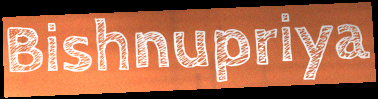
Bishnupriya